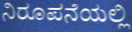
ನಿರೂಪನೆಯಲ್ಲಿ